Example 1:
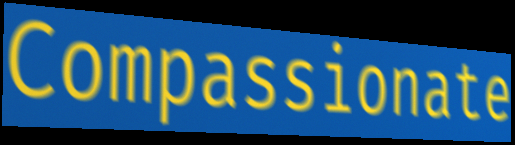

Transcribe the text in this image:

Compassionate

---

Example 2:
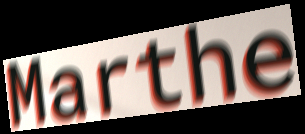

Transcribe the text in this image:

Marthe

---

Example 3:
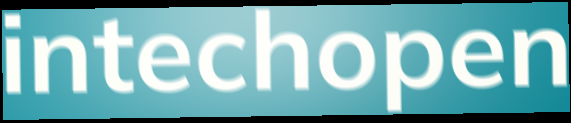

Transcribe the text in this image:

intechopen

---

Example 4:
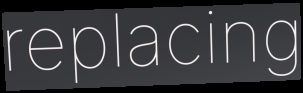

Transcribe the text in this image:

replacing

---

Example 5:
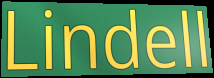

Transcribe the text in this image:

Lindell